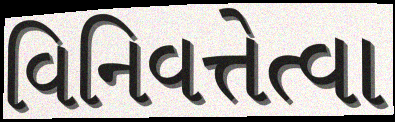
વિનિવત્તેત્વા